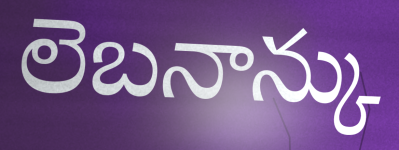
లెబనాన్కు